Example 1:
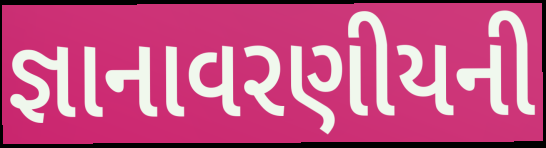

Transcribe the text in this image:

જ્ઞાનાવરણીયની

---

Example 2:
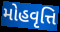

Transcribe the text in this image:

મોહવૃત્તિ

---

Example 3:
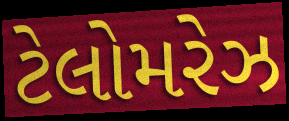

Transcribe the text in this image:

ટેલોમરેઝ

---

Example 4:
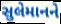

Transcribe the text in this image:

સુલેમાનને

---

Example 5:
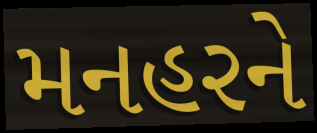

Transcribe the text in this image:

મનહરને